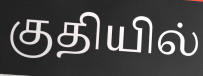
குதியில்